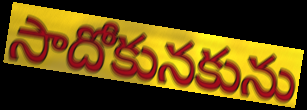
సాదోకునకును